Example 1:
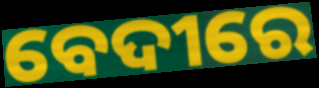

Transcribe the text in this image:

ବେଦୀରେ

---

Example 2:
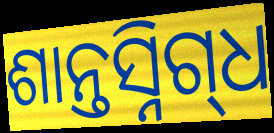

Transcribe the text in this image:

ଶାନ୍ତସ୍ନିଗ୍‌ଧ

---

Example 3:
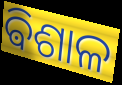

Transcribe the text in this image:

ଵିଶାଳ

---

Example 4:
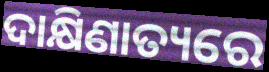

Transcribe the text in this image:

ଦାକ୍ଷିଣାତ୍ୟରେ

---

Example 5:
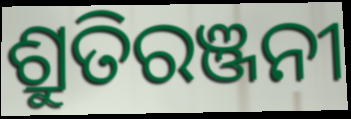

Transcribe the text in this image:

ଶ୍ରୁତିରଞ୍ଜନୀ